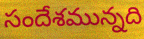
సందేశమున్నది